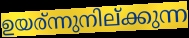
ഉയര്ന്നുനില്ക്കുന്ന